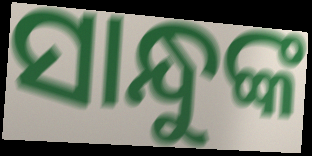
ସାନ୍ଧୁଙ୍କ